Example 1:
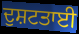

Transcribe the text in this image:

ਦੁਸ਼ਟਤਾਈ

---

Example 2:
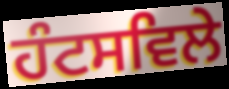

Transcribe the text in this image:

ਹੰਟਸਵਿਲੇ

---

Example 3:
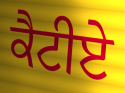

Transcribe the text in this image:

ਕੈਟੀਏ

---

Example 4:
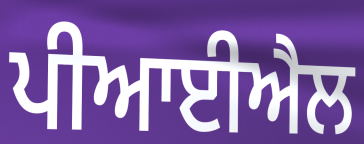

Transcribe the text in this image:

ਪੀਆਈਐਲ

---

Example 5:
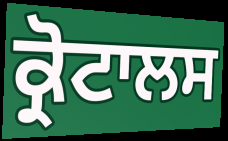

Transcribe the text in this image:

ਕ੍ਰੋਟਾਲਸ